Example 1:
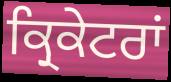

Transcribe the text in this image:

ਕ੍ਰਿਕੇਟਰਾਂ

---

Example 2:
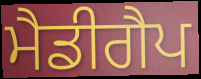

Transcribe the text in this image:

ਮੈਡੀਗੈਪ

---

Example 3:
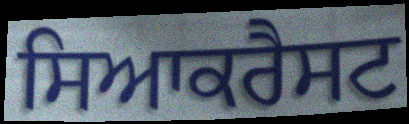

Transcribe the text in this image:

ਸਿਆਕਰੈਸਟ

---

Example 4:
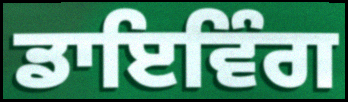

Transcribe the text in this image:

ਡਾਇਵਿੰਗ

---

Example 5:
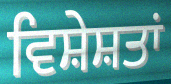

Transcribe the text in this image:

ਵਿਸ਼ੇਸ਼ਤਾਂ